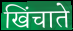
खिंचाते